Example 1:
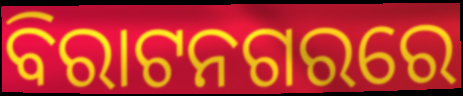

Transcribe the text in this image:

ବିରାଟନଗରରେ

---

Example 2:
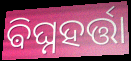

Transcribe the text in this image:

ଵିଘ୍ନହର୍ତ୍ତା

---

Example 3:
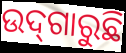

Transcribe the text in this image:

ଉଦ୍‌ଗାରୁଛି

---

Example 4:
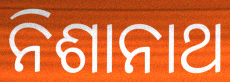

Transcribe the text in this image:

ନିଶାନାଥ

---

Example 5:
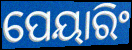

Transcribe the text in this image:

ପେୟାରିଂ